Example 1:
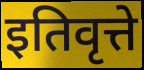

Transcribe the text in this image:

इतिवृत्ते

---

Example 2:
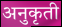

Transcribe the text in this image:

अनुकृती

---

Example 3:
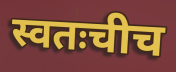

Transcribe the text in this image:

स्वतःचीच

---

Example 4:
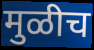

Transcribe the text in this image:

मुळीच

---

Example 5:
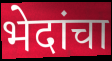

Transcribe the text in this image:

भेदांचा